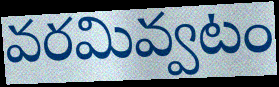
వరమివ్వటం